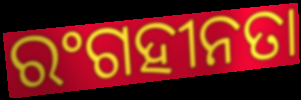
ରଂଗହୀନତା